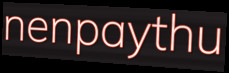
nenpaythu